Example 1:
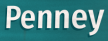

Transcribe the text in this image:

Penney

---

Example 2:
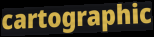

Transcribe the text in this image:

cartographic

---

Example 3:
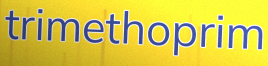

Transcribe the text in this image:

trimethoprim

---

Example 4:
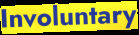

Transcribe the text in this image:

Involuntary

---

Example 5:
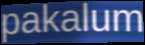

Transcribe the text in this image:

pakalum